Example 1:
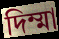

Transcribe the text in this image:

দিম্মা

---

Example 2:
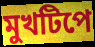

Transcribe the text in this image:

মুখটিপে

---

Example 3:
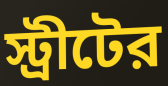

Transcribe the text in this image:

স্ট্রীটের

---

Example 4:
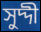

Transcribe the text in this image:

সুদ্দী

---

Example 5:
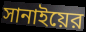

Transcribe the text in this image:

সানাইয়ের